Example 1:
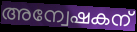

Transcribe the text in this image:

അന്വേഷകന്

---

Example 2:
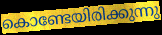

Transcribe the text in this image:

കൊണ്ടേയിരിക്കുന്നു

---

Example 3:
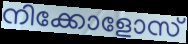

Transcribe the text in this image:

നിക്കോളോസ്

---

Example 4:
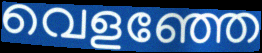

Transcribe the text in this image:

വെളഞ്ഞേ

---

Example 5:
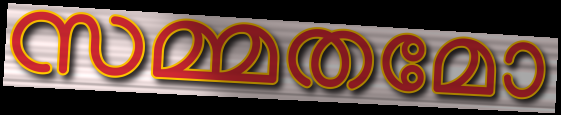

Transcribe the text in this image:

സമ്മതമോ